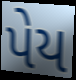
પેય